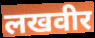
लखवीर